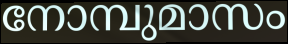
നോമ്പുമാസം